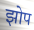
झोप